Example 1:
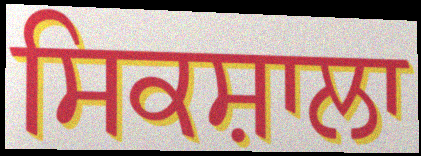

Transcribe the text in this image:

ਸਿਕਸ਼ਾਲਾ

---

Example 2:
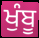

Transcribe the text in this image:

ਖੁੰਬੂ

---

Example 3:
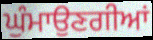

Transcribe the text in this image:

ਘੁੰਮਾਉਣਗੀਆਂ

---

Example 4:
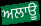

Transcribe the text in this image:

ਅਲਾਊ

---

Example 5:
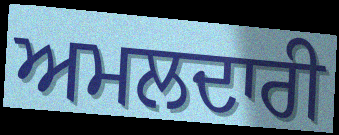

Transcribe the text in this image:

ਅਮਲਦਾਰੀ